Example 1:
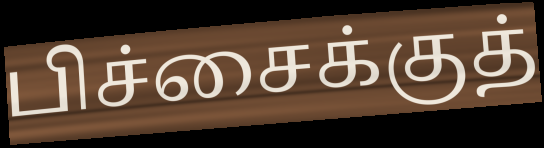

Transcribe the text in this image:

பிச்சைக்குத்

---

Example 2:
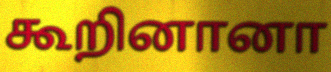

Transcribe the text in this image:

கூறினானா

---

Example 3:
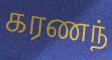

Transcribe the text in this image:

கரணந்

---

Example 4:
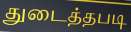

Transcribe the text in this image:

துடைத்தபடி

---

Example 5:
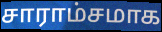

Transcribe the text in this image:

சாராம்சமாக